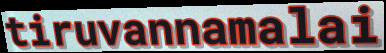
tiruvannamalai